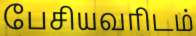
பேசியவரிடம்